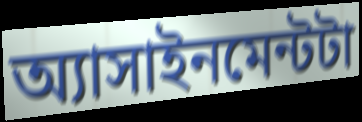
অ্যাসাইনমেন্টটা